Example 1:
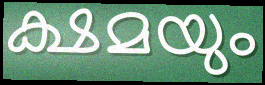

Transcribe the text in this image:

ക്ഷമയും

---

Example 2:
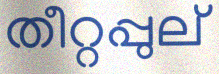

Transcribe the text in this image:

തീറ്റപ്പുല്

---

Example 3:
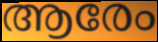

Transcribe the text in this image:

ആരേം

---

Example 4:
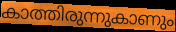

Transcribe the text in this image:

കാത്തിരുന്നുകാണും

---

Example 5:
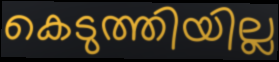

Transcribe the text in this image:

കെടുത്തിയില്ല